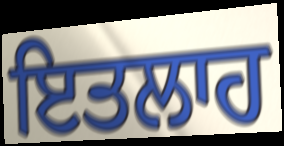
ਇਤਲਾਹ